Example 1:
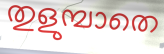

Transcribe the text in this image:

തുളുമ്പാതെ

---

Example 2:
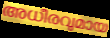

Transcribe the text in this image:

അധീരവുമായ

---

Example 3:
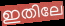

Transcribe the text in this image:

ഇതിലേ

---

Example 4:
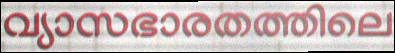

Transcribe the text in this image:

വ്യാസഭാരതത്തിലെ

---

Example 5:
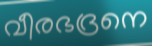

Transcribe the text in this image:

വീരഭദ്രനെ